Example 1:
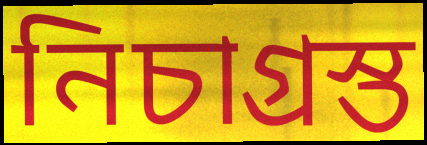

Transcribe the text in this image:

নিচাগ্ৰস্ত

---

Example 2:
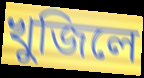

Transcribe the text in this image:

খুজিলে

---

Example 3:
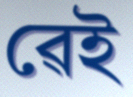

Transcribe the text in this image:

ৱেই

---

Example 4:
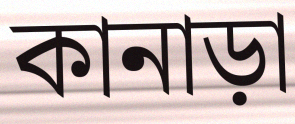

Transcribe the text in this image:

কানাড়া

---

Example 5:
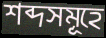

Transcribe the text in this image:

শব্দসমূহে